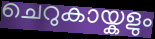
ചെറുകായ്കളും